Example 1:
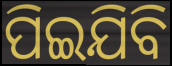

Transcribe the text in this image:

ପିଇଯିବି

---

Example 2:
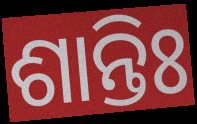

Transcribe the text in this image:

ଶାନ୍ତିଃ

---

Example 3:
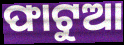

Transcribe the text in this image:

ଫାଟୁଆ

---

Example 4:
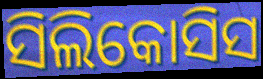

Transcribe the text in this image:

ସିଲିକୋସିସ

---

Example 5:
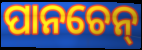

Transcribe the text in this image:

ପାନଚେନ୍